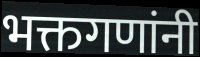
भक्तगणांनी